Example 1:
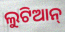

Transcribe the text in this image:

ଲୁଟିଆନ୍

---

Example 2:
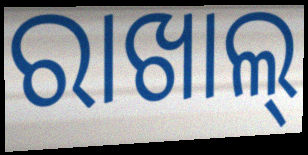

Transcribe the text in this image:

ରାଖାଲ୍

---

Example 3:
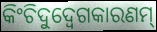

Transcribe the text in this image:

କିଂଚିଦୁଦ୍ବେଗକାରଣମ୍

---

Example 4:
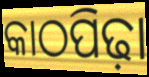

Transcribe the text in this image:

କାଠପିଢ଼ା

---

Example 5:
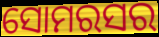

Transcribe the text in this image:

ସୋମରସର